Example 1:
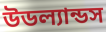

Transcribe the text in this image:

উডল্যান্ডস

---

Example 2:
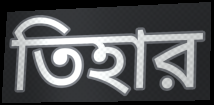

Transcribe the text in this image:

তিহার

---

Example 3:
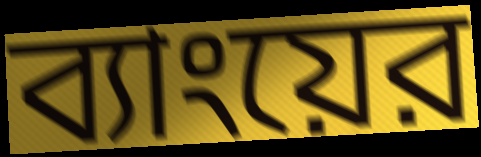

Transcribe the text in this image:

ব্যাংয়ের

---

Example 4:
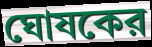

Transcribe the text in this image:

ঘোষকের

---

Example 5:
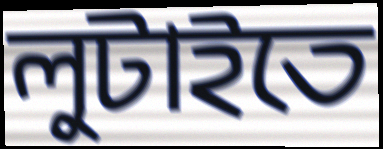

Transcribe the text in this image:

লুটাইতে